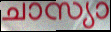
ചാസ്യാ